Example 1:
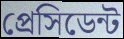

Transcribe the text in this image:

প্রেসিডেন্ট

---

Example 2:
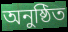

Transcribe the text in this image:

অনুষ্ঠিত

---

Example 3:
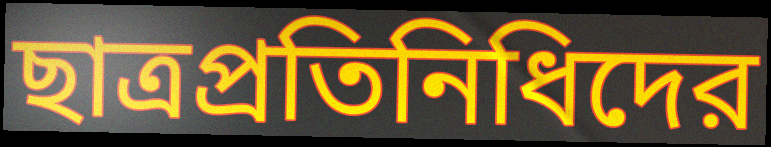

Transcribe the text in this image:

ছাত্রপ্রতিনিধিদের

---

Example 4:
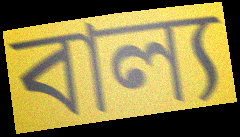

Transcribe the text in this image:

বাল্য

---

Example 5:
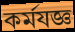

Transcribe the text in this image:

কর্মযজ্ঞ